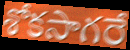
శోకసాగరే